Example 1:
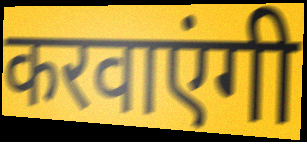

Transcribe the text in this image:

करवाएंगी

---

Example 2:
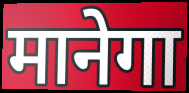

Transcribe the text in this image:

मानेगा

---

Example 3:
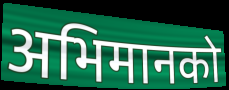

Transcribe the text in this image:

अभिमानको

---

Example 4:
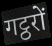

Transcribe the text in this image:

गट्ठरों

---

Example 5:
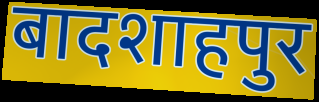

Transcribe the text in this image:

बादशाहपुर